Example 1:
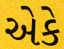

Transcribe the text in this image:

એકે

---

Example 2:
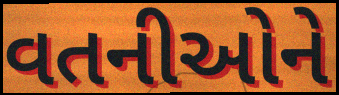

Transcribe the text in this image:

વતનીઓને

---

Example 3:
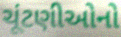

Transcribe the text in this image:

ચૂંટણીઓનો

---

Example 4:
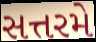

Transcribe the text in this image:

સત્તરમે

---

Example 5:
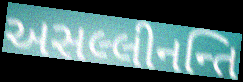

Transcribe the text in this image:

અસલ્લીનન્તિ